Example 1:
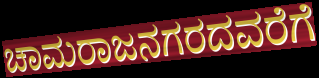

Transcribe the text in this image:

ಚಾಮರಾಜನಗರದವರೆಗೆ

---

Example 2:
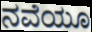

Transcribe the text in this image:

ನವೆಯೂ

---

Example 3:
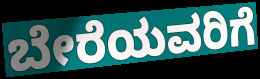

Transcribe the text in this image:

ಬೇರೆಯವರಿಗೆ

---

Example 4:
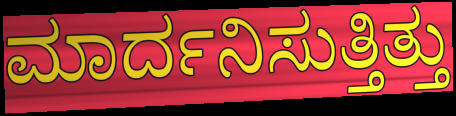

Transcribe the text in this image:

ಮಾರ್ದನಿಸುತ್ತಿತ್ತು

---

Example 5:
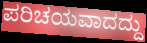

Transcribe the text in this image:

ಪರಿಚಯವಾದದ್ದು